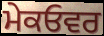
ਮੇਕਓਵਰ